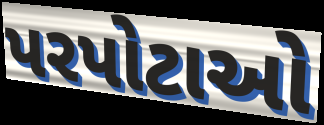
પરપોટાઓ